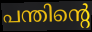
പന്തിന്റെ